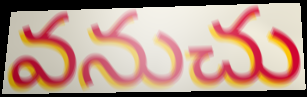
వనుచు